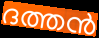
ദത്തൻ